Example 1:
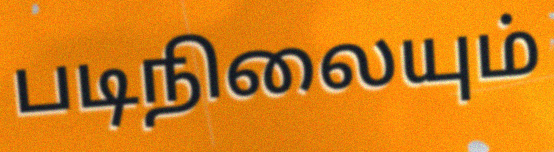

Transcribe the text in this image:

படிநிலையும்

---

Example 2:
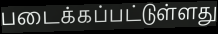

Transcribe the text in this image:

படைக்கப்பட்டுள்ளது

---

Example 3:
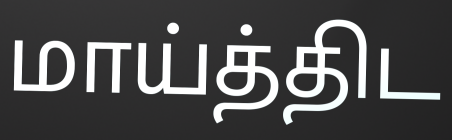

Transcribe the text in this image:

மாய்த்திட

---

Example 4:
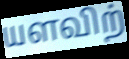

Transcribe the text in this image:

யளவிற்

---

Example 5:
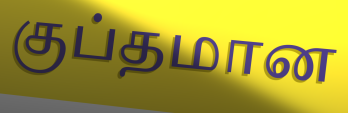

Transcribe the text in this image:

குப்தமான